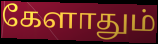
கேளாதும்